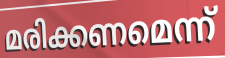
മരിക്കണമെന്ന്